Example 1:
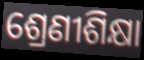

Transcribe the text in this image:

ଶ୍ରେଣୀଶିକ୍ଷା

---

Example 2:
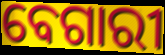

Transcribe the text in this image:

ବେଗାରୀ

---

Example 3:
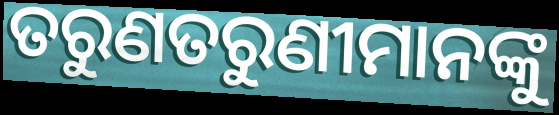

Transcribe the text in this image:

ତରୁଣତରୁଣୀମାନଙ୍କୁ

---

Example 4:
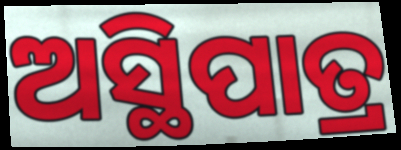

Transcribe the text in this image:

ଅସ୍ଥିପାତ୍ର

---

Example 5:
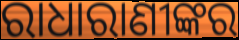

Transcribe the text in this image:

ରାଧାରାଣୀଙ୍କର